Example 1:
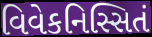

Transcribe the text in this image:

વિવેકનિસ્સિતં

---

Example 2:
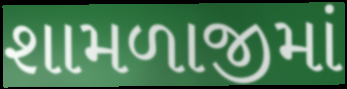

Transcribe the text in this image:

શામળાજીમાં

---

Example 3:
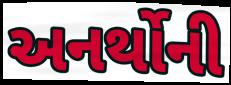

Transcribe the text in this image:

અનર્થોની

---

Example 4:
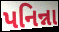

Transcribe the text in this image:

પનિન્ના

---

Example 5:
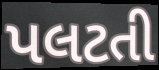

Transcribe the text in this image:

પલટતી